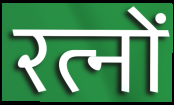
रत्‍नों